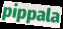
pippala